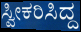
ಸ್ವೀಕರಿಸಿದ್ದ